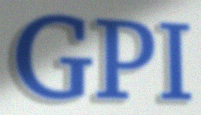
GPI